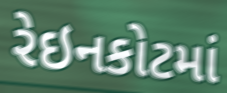
રેઇનકોટમાં